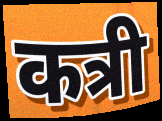
कत्री